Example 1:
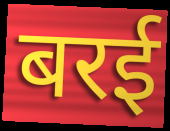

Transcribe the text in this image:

बरई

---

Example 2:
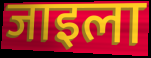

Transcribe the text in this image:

जाइला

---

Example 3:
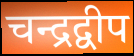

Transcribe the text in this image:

चन्द्रद्वीप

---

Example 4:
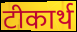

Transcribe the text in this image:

टीकार्थ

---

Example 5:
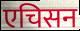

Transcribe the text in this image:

एचिसन